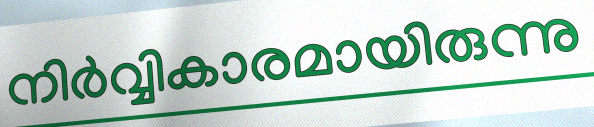
നിർവ്വികാരമായിരുന്നു